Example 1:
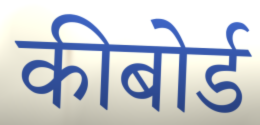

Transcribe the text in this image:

कीबोर्ड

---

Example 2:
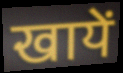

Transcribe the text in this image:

खायें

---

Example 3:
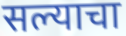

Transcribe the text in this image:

सल्याचा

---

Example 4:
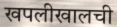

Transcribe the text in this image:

खपलीखालची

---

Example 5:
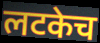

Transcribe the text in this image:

लटकेच